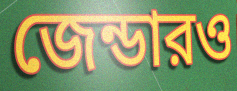
জেন্ডারও